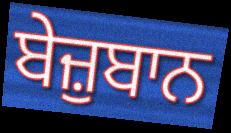
ਬੇਜ਼ੁਬਾਨ